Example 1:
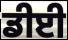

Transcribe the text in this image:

ਡੀਈ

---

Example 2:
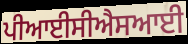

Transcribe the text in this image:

ਪੀਆਈਸੀਐਸਆਈ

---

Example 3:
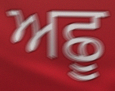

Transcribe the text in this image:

ਅਛੂ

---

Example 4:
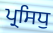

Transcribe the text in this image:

ਪ੍ਰਸਿਧੁ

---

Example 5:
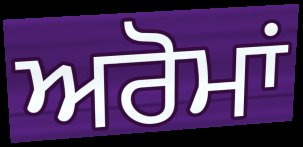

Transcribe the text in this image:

ਅਰੋਮਾਂ